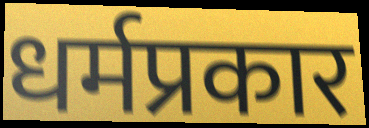
धर्मप्रकार